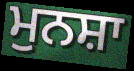
ਮੁਨਸ਼ਾ